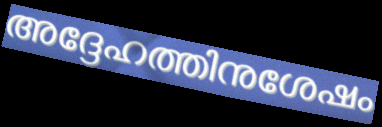
അദ്ദേഹത്തിനുശേഷം